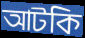
আটকি